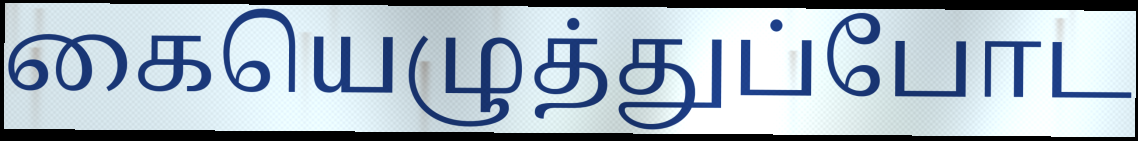
கையெழுத்துப்போட